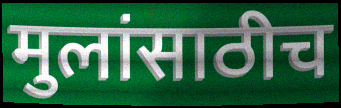
मुलांसाठीच